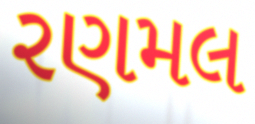
રણમલ